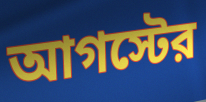
আগস্টের